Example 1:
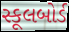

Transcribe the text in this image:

સ્કૂલબોર્ડ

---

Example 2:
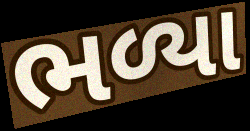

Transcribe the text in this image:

ભળ્યા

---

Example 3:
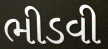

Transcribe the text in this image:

ભીડવી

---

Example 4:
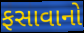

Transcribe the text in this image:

ફસાવાનો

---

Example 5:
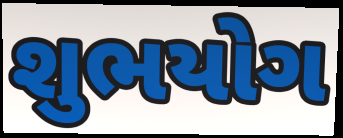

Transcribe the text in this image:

શુભયોગ